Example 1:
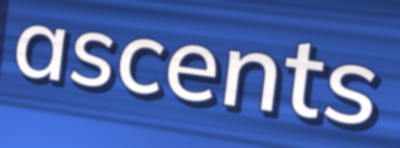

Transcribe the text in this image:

ascents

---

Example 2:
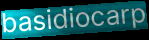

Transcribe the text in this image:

basidiocarp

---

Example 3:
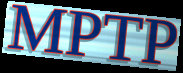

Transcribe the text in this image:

MPTP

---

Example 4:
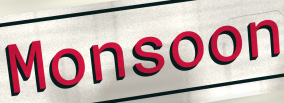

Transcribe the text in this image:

Monsoon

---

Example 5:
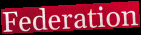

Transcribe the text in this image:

Federation